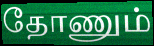
தோணும்